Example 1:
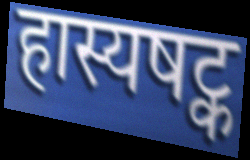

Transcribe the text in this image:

हास्यषट्क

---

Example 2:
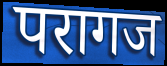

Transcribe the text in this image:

परागज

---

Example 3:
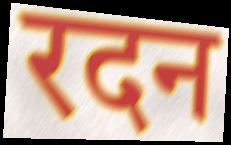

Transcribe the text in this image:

रदन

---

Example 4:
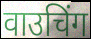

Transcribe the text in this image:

वाउचिंग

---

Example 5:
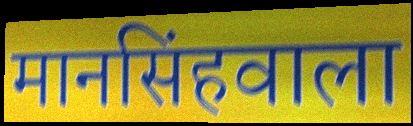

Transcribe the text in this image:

मानसिंहवाला